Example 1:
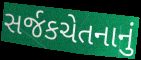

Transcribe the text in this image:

સર્જકચેતનાનું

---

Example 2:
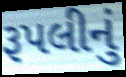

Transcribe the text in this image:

રૂપલીનું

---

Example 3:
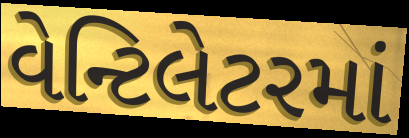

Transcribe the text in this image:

વેન્ટિલેટરમાં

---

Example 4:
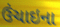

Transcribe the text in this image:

ઉંચાઇના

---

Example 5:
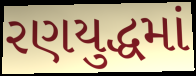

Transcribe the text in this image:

રણયુદ્ધમાં